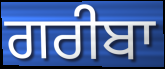
ਗਰੀਬਾ